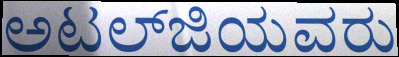
ಅಟಲ್‍ಜಿಯವರು